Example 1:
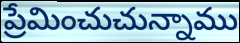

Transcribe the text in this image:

ప్రేమించుచున్నాము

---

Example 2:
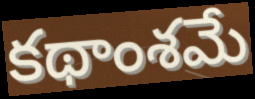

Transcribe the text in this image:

కథాంశమే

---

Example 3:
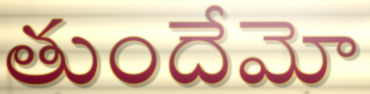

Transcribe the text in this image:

తుందేమో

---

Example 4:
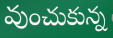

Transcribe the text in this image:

వుంచుకున్న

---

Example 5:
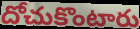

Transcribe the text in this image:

దోచుకొంటారు